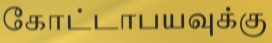
கோட்டாபயவுக்கு